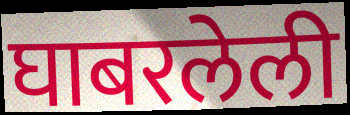
घाबरलेली